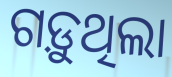
ଗଡ଼ୁଥିଲା